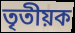
তৃতীয়ক